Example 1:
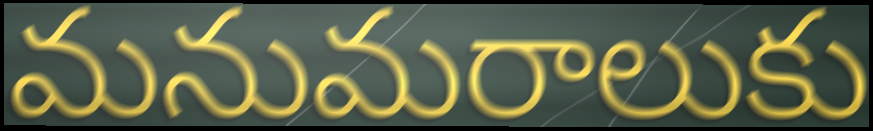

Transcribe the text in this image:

మనుమరాలుకు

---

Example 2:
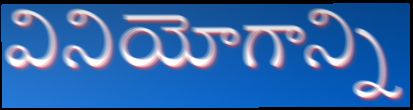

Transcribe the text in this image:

వినియోగాన్ని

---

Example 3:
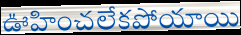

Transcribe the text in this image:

ఊహించలేకపోయాయి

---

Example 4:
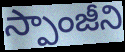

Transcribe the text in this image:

స్పాంజీని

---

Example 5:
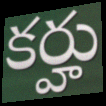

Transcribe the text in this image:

కర్హు